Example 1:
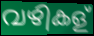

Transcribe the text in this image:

വഴികള്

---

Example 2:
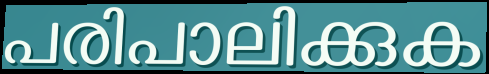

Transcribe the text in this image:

പരിപാലിക്കുക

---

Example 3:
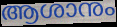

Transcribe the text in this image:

ആശാനും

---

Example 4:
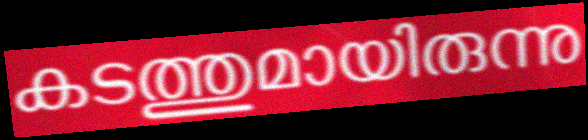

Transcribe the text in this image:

കടത്തുമായിരുന്നു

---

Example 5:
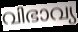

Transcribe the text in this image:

വിഭാവ്യ